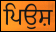
ਪਿਉਸ਼